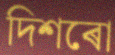
দিশৰো